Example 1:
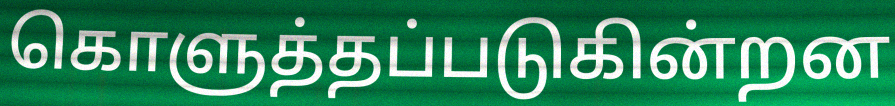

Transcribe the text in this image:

கொளுத்தப்படுகின்றன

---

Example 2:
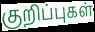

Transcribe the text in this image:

குறிப்புகள்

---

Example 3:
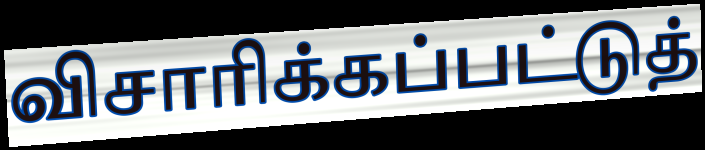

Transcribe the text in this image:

விசாரிக்கப்பட்டுத்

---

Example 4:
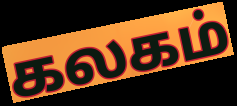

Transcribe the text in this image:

கலகம்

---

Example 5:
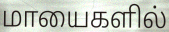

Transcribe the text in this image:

மாயைகளில்